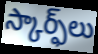
స్కార్ఫ్‌లు